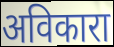
अविकारा